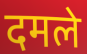
दमले